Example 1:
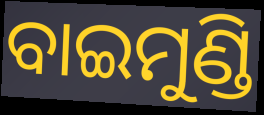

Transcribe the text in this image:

ବାଇମୁଣ୍ଡି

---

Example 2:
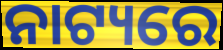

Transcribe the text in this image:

ନାଟ୍ୟରେ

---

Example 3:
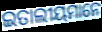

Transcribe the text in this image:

ଇତାଲୀୟମାନେ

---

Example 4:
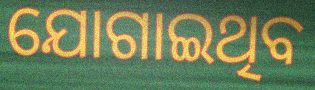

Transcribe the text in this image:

ଯୋଗାଇଥିବ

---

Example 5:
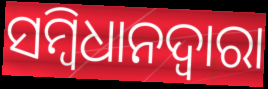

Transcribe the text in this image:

ସମ୍ବିଧାନଦ୍ବାରା